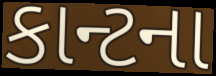
કાન્ટના